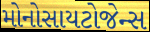
મોનોસાયટોજેન્સ